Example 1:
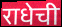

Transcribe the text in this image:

राधेची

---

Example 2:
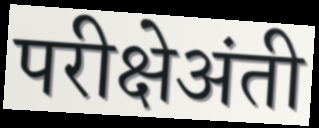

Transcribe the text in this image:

परीक्षेअंती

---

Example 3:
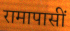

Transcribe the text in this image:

रामापासीं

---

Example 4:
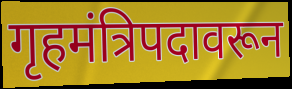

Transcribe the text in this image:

गृहमंत्रिपदावरून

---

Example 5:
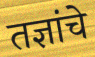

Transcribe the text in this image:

तज्ञांचे